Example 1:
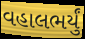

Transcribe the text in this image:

વહાલભર્યું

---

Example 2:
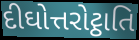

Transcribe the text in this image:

દીઘોત્તરોટ્ઠાતિ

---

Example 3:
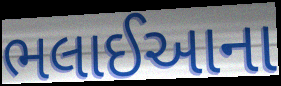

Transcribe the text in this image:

ભલાઈઆના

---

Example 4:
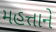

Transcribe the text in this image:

મહત્તાને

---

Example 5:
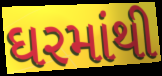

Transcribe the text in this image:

ઘરમાંથી